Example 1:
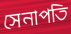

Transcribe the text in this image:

সেনাপতি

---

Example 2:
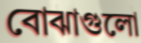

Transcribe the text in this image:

বোঝাগুলো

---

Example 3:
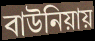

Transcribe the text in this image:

বাউনিয়ায়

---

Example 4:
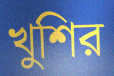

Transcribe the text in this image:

খুশির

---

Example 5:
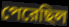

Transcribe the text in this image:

পেরেছিল